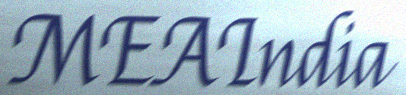
MEAIndia